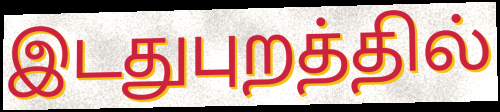
இடதுபுறத்தில்